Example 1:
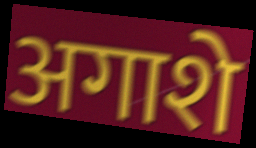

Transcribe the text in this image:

अगाशे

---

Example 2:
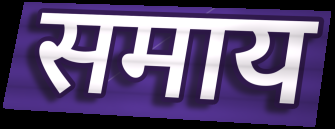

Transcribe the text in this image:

समाय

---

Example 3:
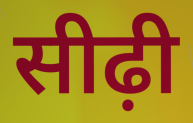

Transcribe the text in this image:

सीढ़ी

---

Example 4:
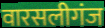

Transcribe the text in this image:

वारसलीगंज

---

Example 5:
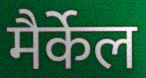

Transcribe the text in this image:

मैर्केल